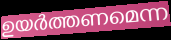
ഉയർത്തണമെന്ന